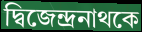
দ্বিজেন্দ্রনাথকে